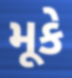
મૂકે